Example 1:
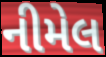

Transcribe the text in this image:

નીમેલ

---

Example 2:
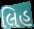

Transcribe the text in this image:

લિહ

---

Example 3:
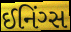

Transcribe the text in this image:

ઈનિંગ્સ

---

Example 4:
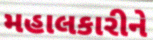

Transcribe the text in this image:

મહાલકારીને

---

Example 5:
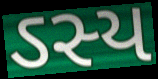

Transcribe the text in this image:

ઽસ્ય